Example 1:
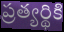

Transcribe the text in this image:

ప్రత్యర్థికి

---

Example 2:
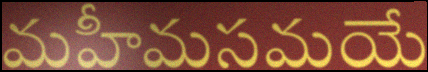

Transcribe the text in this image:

మహీమసమయే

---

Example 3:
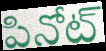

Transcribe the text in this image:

పినోట్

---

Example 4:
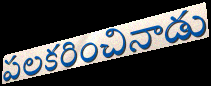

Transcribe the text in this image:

పలకరించినాడు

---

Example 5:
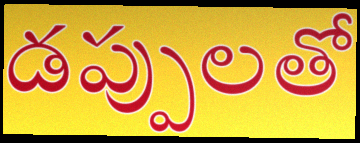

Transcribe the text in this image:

డప్పులతో